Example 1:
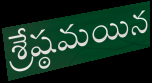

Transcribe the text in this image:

శ్రేష్ఠమయిన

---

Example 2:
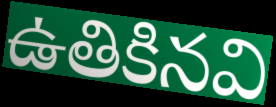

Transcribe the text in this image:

ఉతికినవి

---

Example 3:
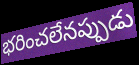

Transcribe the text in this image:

భరించలేనప్పుడు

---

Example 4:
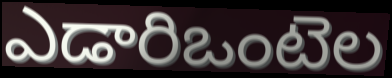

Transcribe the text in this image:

ఎడారిఒంటెల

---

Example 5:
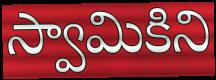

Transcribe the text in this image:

స్వామికిని